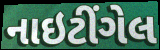
નાઇટીંગેલ